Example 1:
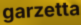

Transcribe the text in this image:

garzetta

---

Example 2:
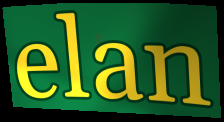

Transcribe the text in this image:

elan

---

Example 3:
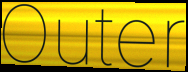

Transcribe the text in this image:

Outer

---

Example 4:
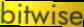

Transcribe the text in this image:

bitwise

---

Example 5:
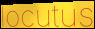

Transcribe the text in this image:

locutus